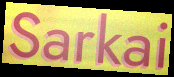
Sarkai